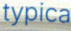
typica